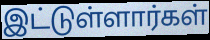
இட்டுள்ளார்கள்